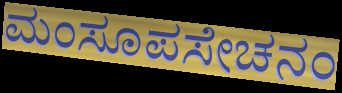
ಮಂಸೂಪಸೇಚನಂ